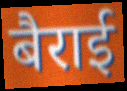
बैराई